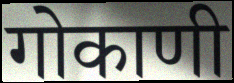
गोकाणी